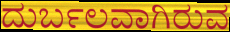
ದುರ್ಬಲವಾಗಿರುವ